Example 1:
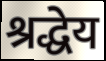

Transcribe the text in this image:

श्रद्धेय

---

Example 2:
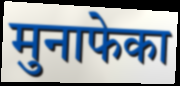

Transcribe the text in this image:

मुनाफेका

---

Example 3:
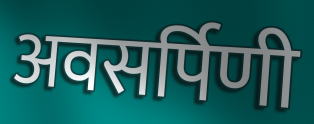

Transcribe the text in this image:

अवसर्पिणी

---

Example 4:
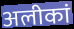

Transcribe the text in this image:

अलीकां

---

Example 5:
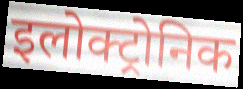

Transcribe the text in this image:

इलोक्ट्रोनिक